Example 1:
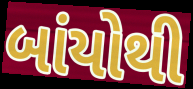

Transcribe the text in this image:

બાંયોથી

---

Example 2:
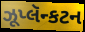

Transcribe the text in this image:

ઝૂપ્લૅન્કટન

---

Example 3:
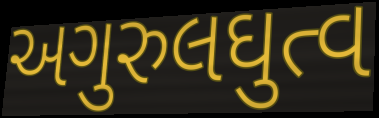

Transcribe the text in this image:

અગુરુલઘુત્વ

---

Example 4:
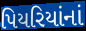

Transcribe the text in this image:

પિયરિયાંનાં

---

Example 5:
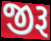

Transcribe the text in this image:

જીરૂ